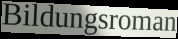
Bildungsroman